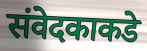
संवेदकाकडे